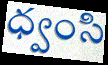
ధ్వంసి